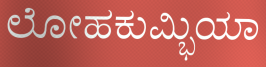
ಲೋಹಕುಮ್ಭಿಯಾ